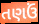
તણઉં